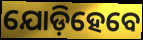
ଯୋଡ଼ିହେବେ